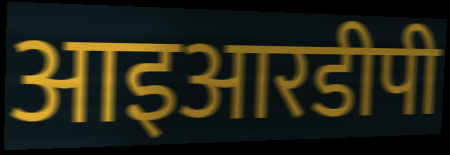
आइआरडीपी